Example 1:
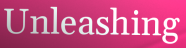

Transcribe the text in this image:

Unleashing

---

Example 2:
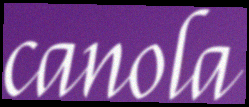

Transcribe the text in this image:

canola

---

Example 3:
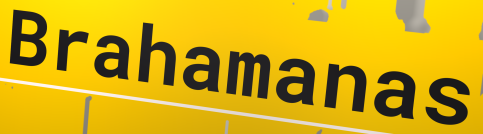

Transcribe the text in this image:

Brahamanas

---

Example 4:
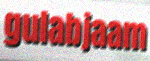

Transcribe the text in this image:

gulabjaam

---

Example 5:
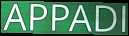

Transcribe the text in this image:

APPADI